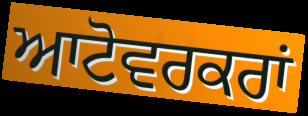
ਆਟੋਵਰਕਰਾਂ